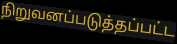
நிறுவனப்படுத்தப்பட்ட